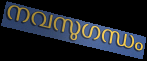
നവസുഗന്ധം